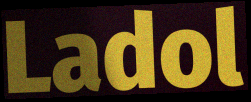
Ladol